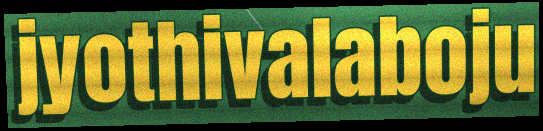
jyothivalaboju